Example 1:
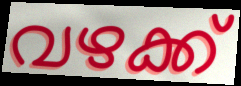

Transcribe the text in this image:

വഴക്ക്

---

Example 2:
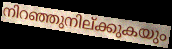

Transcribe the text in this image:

നിറഞ്ഞുനില്ക്കുകയും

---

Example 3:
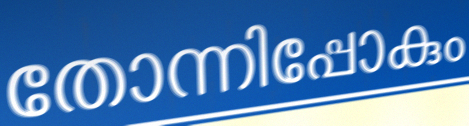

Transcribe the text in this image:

തോന്നിപ്പോകും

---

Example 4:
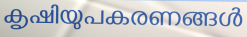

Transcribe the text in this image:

കൃഷിയുപകരണങ്ങൾ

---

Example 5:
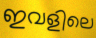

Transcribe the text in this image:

ഇവളിലെ